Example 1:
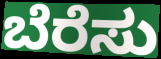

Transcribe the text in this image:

ಬೆರೆಸು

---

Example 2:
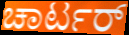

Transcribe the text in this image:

ಚಾರ್ಟರ್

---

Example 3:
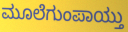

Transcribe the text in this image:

ಮೂಲೆಗುಂಪಾಯ್ತು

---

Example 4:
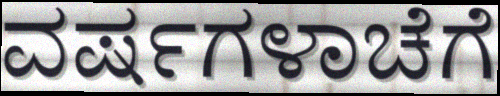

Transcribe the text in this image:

ವರ್ಷಗಳಾಚೆಗೆ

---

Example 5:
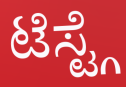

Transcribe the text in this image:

ಟೆಸ್ಟ್ಗೆ